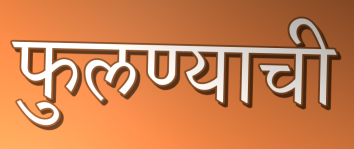
फुलण्याची